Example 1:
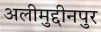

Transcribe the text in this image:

अलीमुद्दीनपुर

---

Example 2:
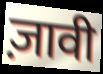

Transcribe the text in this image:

ज़ावी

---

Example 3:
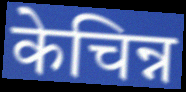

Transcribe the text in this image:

केचिन्न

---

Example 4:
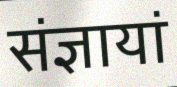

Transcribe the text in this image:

संज्ञायां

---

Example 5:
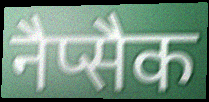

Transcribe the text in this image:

नैप्सैक